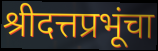
श्रीदत्तप्रभूंचा